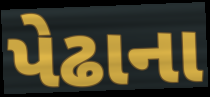
પેઢાના